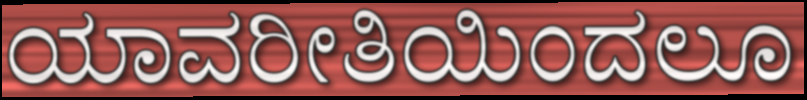
ಯಾವರೀತಿಯಿಂದಲೂ